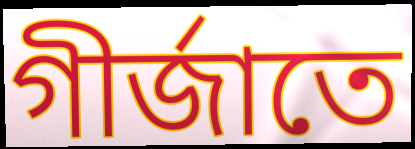
গীর্জাতে